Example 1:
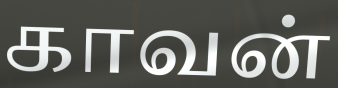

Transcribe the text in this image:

காவன்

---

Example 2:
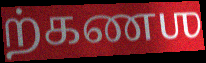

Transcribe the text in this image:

ற்கணஶ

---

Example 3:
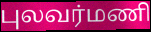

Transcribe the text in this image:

புலவர்மணி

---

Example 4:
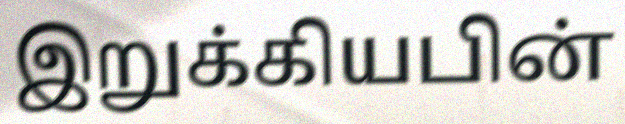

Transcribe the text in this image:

இறுக்கியபின்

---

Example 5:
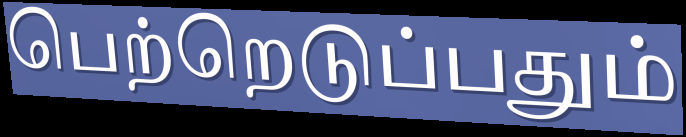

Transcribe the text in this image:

பெற்றெடுப்பதும்